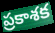
ప్రకాశక